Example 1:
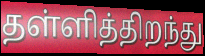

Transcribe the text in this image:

தள்ளித்திறந்து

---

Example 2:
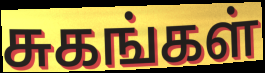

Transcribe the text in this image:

சுகங்கள்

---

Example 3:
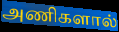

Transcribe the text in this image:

அணிகளால்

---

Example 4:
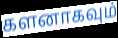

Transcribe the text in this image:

களனாகவும்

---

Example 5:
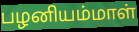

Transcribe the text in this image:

பழனியம்மாள்